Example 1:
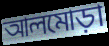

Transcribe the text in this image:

আলমোড়া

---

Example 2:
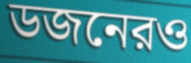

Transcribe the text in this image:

ডজনেরও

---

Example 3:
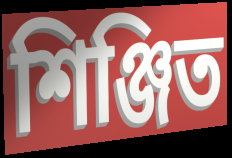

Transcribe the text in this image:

শিঞ্জিত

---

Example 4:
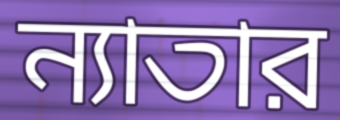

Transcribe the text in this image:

ন্যাতার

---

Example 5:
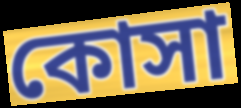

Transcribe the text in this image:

কোসা